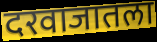
दरवाजातला